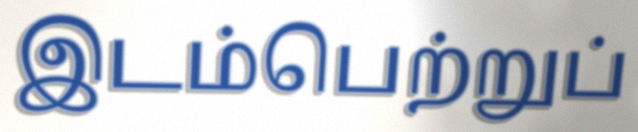
இடம்பெற்றுப்